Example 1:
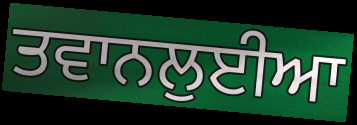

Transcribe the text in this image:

ਤਵਾਨਲੁਈਆ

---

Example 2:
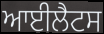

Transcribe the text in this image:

ਆਈਲੈਟਸ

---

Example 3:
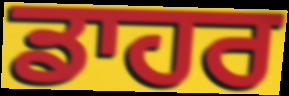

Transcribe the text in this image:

ਡਾਹਰ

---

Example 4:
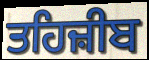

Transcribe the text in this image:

ਤਹਿਜ਼ੀਬ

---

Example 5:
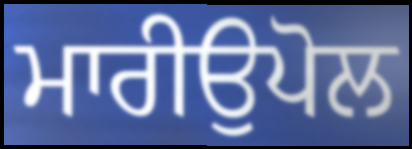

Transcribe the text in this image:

ਮਾਰੀਉਪੋਲ